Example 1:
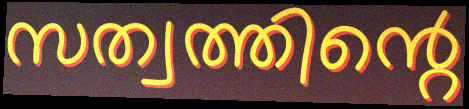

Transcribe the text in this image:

സത്വത്തിന്റെ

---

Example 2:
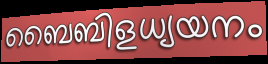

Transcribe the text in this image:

ബൈബിളധ്യയനം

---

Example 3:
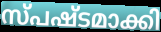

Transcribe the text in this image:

സ്പഷ്ടമാക്കി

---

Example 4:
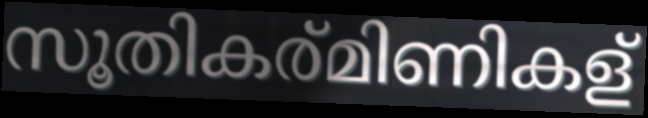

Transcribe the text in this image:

സൂതികര്മിണികള്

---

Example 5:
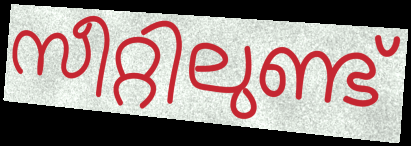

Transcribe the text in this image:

സീറ്റിലുണ്ട്